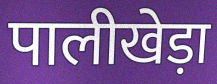
पालीखेड़ा